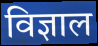
विज्ञाल